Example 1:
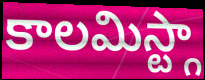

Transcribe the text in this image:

కాలమిస్ట్గా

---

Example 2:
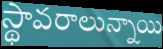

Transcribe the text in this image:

స్థావరాలున్నాయి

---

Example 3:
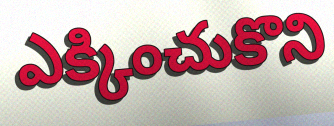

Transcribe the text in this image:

ఎక్కించుకొని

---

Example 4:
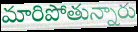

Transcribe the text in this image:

మారిపోతున్నారు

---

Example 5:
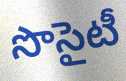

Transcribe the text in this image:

సొసైటీ